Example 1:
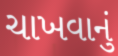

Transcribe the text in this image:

ચાખવાનું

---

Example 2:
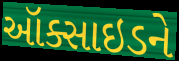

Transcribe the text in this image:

ઑક્સાઇડને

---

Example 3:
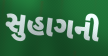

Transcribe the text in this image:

સુહાગની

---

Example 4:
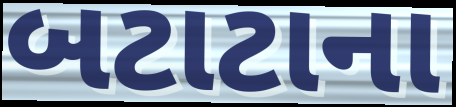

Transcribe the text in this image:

બટાટાના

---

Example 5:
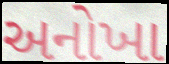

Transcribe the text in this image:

અનોખા